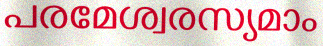
പരമേശ്വരസ്യമാം